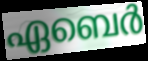
ഏബെർ